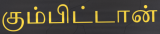
கும்பிட்டான்